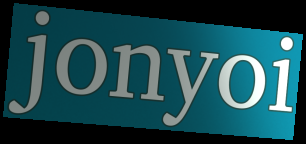
jonyoi